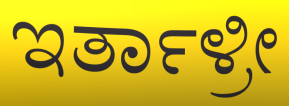
ಇರ್ತಾಳ್ರೀ